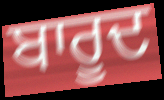
ਬਾਰੂਦ